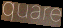
quare